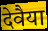
देवैया